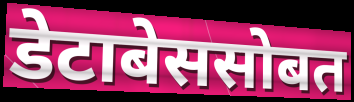
डेटाबेससोबत